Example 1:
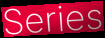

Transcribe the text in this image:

Series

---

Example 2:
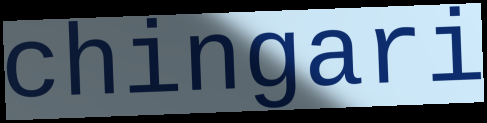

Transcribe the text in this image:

chingari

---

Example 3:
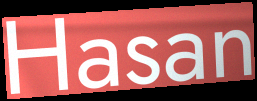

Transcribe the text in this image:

Hasan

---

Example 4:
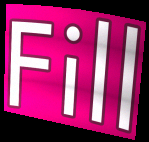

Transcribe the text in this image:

Fill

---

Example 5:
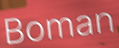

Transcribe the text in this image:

Boman